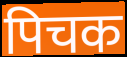
पिचक